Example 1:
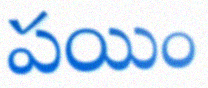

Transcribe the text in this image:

పయిం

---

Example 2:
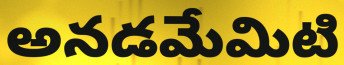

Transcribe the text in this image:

అనడమేమిటి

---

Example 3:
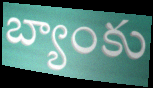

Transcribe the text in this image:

బ్యాంకు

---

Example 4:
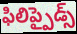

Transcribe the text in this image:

ఫిలిప్పైడ్స్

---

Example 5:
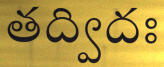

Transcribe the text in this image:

తద్విదః